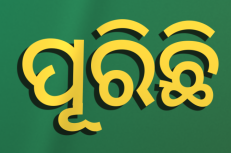
ପୂରିଛି